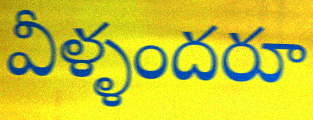
వీళ్ళందరూ